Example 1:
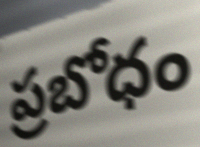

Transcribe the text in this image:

ప్రబోధం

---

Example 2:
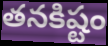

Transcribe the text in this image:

తనకిష్టం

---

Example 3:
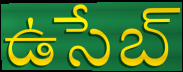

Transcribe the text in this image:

ఉసేబ్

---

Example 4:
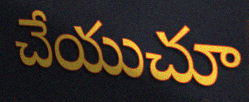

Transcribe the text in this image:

చేయుచూ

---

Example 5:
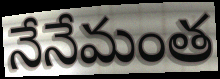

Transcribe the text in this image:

నేనేమంత